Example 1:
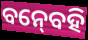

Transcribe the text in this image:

ବନ୍‍ବେହି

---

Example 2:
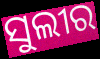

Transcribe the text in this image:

ସୁଲୀର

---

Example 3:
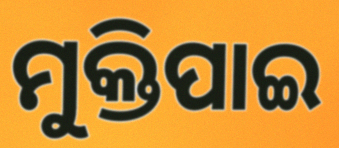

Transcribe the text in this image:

ମୁକ୍ତିପାଇ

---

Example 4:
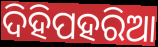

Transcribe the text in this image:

ଦିହିପହରିଆ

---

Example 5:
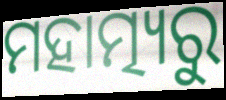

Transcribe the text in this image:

ମହାତ୍ମ୍ୟରୁ